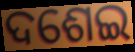
ଦଶେଇ